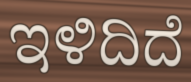
ಇಳಿದಿದೆ